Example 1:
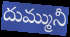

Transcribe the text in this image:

దుమ్మునీ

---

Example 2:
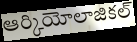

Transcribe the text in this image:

ఆర్కియోలాజికల్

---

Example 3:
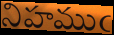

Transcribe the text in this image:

నిహముఁ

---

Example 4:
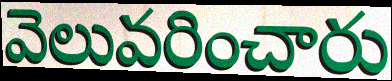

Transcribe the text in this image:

వెలువరించారు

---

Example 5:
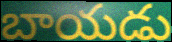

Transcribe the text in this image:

బాయడు